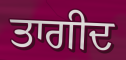
ਤਾਗੀਦ